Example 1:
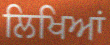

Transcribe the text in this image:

ਲਿਖਿਆਂ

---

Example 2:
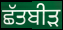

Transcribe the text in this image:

ਛੱਤਬੀੜ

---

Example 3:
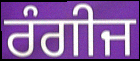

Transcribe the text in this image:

ਰੰਗੀਜ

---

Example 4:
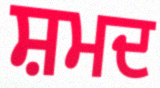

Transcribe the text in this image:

ਸ਼ਮਦ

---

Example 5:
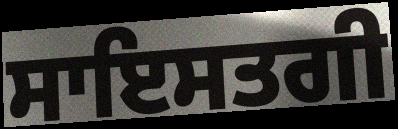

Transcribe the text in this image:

ਸਾਇਸਤਗੀ